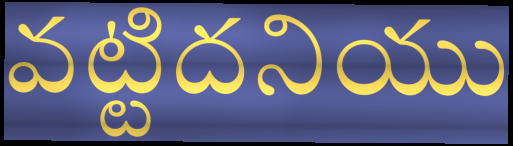
వట్టిదనియు